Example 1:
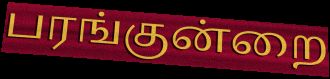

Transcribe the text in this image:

பரங்குன்றை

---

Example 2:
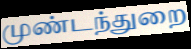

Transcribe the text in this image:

முண்டந்துறை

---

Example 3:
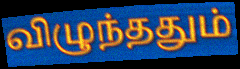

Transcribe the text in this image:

விழுந்ததும்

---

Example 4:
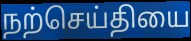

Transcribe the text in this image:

நற்செய்தியை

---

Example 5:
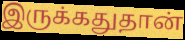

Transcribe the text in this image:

இருக்கதுதான்